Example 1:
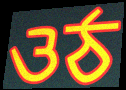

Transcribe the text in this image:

ওঠ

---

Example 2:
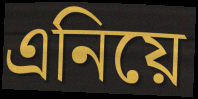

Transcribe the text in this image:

এনিয়ে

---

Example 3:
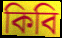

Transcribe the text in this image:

কিবি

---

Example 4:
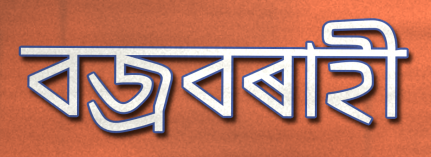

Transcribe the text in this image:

বজ্ৰবৰাহী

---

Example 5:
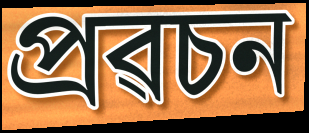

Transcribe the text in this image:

প্ৰৱচন